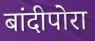
बांदीपोरा